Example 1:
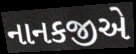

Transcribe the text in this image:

નાનકજીએ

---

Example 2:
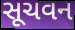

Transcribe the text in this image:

સૂચવન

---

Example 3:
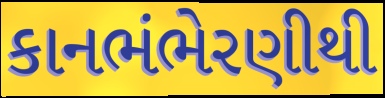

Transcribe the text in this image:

કાનભંભેરણીથી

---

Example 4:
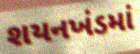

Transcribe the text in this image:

શયનખંડમાં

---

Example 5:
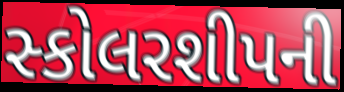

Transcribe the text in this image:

સ્કોલરશીપની